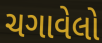
ચગાવેલો